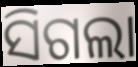
ସିଗଲା